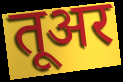
तूअर